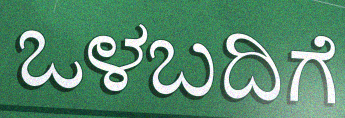
ಒಳಬದಿಗೆ